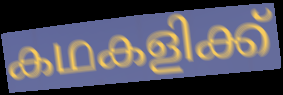
കഥകളിക്ക്